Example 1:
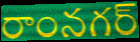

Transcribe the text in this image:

రాంనగర్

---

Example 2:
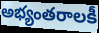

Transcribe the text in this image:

అభ్యంతరాలకీ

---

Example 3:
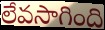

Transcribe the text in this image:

లేవసాగింది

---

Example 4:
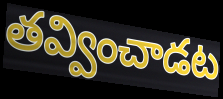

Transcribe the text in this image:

తవ్వించాడట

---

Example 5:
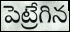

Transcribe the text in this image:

పెట్రేగిన